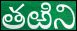
తఱిని